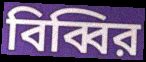
বিব্বির